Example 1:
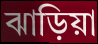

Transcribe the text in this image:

ঝাড়িয়া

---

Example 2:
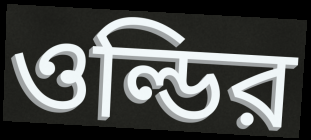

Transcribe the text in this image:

ওল্ডির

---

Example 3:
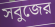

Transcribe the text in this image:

সবুজের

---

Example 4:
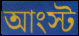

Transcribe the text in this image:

আংস্ট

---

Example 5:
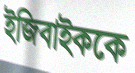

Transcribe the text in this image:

ইজিবাইককে